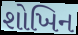
શોખિન